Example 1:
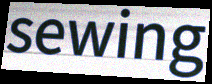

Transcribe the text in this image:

sewing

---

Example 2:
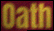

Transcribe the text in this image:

Oath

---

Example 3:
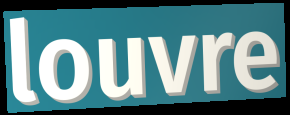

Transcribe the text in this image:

louvre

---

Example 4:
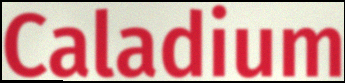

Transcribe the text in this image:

Caladium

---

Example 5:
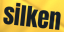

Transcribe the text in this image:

silken